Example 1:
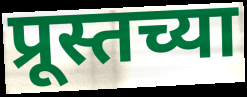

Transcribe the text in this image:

प्रूस्तच्या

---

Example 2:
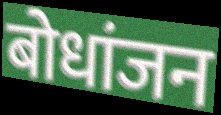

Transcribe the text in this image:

बोधांजन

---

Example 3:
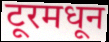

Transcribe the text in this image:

टूरमधून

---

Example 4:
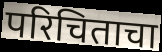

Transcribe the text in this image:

परिचिताचा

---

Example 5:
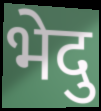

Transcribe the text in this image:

भेदु